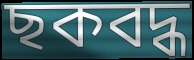
ছকবদ্ধ